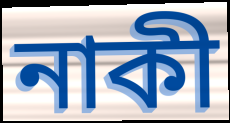
নাকী